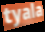
tyala